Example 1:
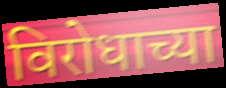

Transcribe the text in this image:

विरोधाच्या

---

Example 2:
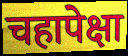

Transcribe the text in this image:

चहापेक्षा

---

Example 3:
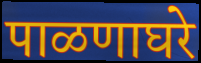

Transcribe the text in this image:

पाळणाघरे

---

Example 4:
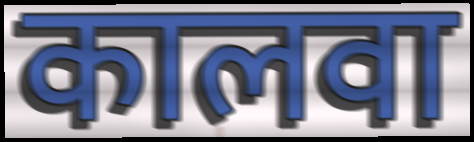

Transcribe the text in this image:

कालवा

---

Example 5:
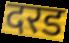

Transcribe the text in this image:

दरड